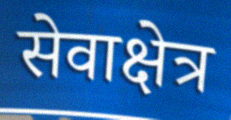
सेवाक्षेत्र